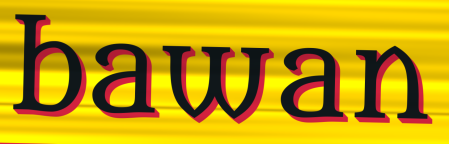
bawan